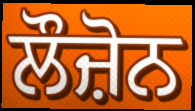
ਲੌਜ਼ੋਨ